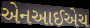
એનઆઈએચ